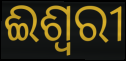
ଈଶ୍ଵରୀ